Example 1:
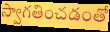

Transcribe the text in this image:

స్వాగతించడంతో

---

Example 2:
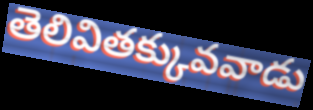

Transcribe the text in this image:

తెలివితక్కువవాడు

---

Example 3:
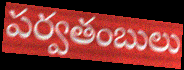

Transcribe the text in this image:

పర్వతంబులు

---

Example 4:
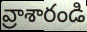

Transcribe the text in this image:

వ్రాశారండి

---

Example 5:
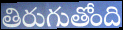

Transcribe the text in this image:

తిరుగుతోంది